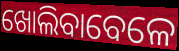
ଖୋଲିବାବେଳେ